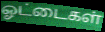
ஓட்டைகள்